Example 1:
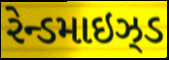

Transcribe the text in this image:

રેન્ડમાઇઝ્ડ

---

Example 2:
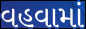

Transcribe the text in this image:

વહવામાં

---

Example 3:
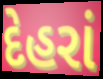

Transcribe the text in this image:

દેહરાં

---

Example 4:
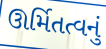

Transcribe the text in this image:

ઊર્મિતત્વનું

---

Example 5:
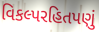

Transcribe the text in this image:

વિકલ્પરહિતપણું